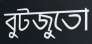
বুটজুতো